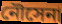
নৌসেনা